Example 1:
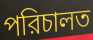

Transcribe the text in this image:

পরিচালত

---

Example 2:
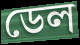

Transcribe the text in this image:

ডেল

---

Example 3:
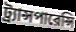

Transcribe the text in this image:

ট্র্যান্সপারেন্সি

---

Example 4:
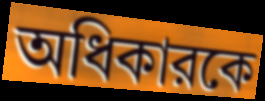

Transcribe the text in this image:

অধিকারকে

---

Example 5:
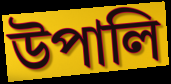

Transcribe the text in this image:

উপালি